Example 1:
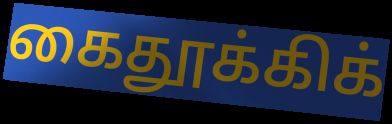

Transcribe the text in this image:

கைதூக்கிக்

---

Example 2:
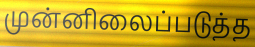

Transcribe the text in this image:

முன்னிலைப்படுத்த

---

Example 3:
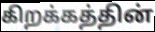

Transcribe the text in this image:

கிறக்கத்தின்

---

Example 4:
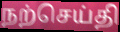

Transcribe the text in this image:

நற்செய்தி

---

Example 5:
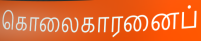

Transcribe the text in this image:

கொலைகாரனைப்